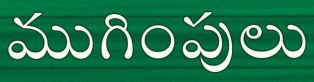
ముగింపులు